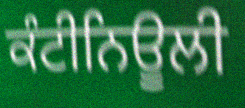
ਕੰਟੀਨਿਊਲੀ